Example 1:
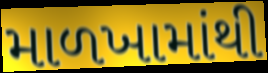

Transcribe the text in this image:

માળખામાંથી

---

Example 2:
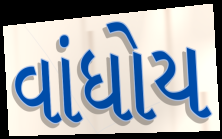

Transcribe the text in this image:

વાંધોય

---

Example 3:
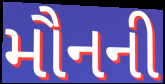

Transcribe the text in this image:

મૌનની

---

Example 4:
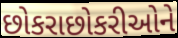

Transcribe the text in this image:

છોકરાછોકરીઓને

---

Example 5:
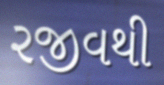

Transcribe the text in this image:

રજીવથી